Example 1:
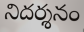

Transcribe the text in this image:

నిదర్శనం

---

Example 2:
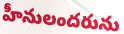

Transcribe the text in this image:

హీనులందరును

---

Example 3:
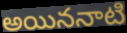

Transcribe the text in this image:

అయిననాటి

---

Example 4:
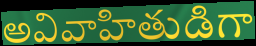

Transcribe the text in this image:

అవివాహితుడిగా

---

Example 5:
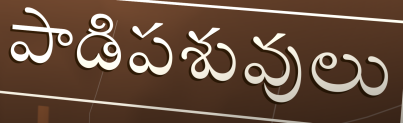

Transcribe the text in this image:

పాడిపశువులు